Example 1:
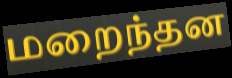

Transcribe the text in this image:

மறைந்தன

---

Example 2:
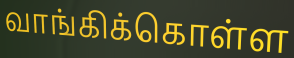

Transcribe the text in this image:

வாங்கிக்கொள்ள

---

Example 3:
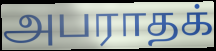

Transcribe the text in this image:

அபராதக்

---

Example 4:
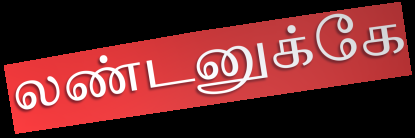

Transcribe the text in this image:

லண்டனுக்கே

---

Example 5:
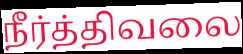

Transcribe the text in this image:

நீர்த்திவலை